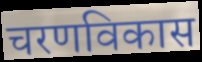
चरणविकास